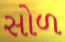
સોળ